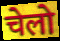
चेलो